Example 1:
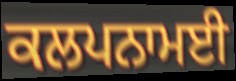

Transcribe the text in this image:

ਕਲਪਨਾਮਈ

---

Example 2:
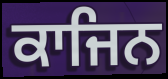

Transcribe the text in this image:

ਕਾਜਿਨ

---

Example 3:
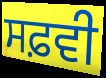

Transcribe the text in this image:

ਸਫ਼ਵੀ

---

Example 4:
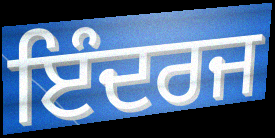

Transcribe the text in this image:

ਇੰਦਰਜ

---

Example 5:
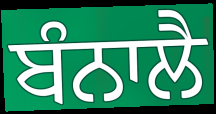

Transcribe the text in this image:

ਬੰਨਾਲੈ